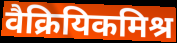
वैक्रियिकमिश्र